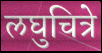
लघुचित्रे